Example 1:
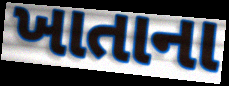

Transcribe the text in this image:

ખાતાના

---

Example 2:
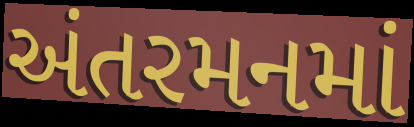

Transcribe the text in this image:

અંતરમનમાં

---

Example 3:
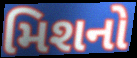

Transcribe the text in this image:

મિશનો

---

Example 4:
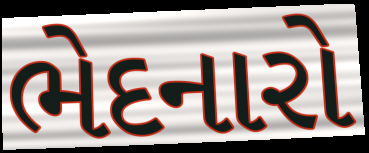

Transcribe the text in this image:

ભેદનારો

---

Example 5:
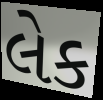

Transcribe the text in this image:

લેક